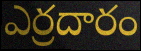
ఎర్రదారం